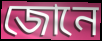
জোনে